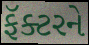
ફૅક્ટરને